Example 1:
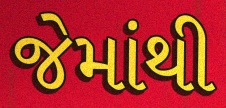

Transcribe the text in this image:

જેમાંથી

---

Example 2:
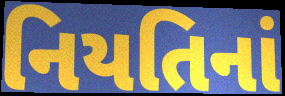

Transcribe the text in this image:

નિયતિનાં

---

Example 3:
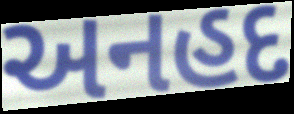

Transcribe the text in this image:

અનહદ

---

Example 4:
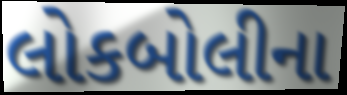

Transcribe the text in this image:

લોકબોલીના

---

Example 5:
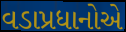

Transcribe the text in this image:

વડાપ્રધાનોએ